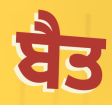
ਬੈਤ